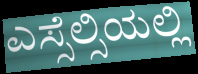
ಎಸ್ಸೆಲ್ಸಿಯಲ್ಲಿ